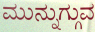
ಮುನ್ನುಗ್ಗುವ